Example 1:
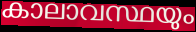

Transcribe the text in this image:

കാലാവസ്ഥയും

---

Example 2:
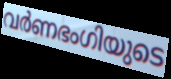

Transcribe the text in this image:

വർണഭംഗിയുടെ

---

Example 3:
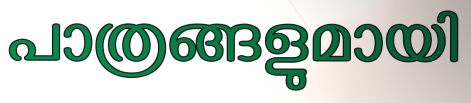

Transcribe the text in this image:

പാത്രങ്ങളുമായി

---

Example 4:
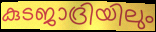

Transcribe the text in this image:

കുടജാദ്രിയിലും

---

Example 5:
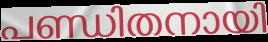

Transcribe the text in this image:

പണ്ഡിതനായി